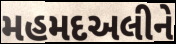
મહમદઅલીને